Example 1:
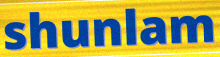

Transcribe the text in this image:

shunlam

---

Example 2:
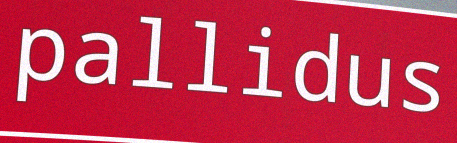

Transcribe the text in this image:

pallidus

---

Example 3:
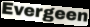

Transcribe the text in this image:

Evergeen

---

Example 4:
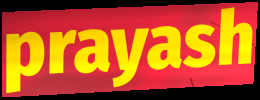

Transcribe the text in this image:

prayash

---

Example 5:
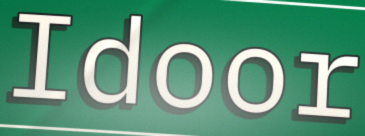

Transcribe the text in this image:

Idoor